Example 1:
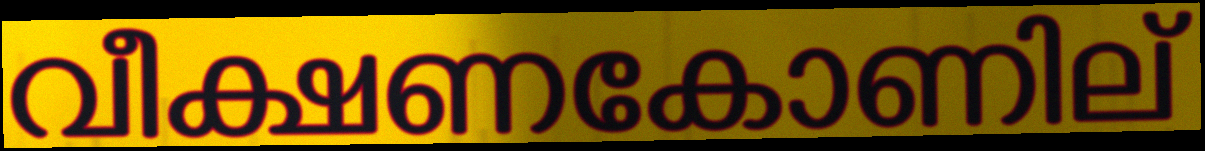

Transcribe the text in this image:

വീക്ഷണകോണില്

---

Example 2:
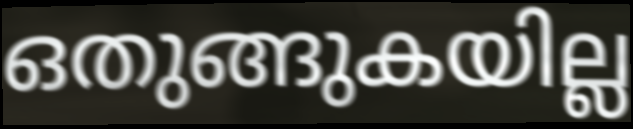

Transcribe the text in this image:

ഒതുങ്ങുകയില്ല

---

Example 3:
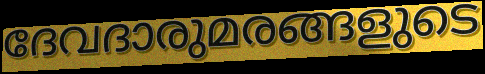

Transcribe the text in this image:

ദേവദാരുമരങ്ങളുടെ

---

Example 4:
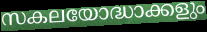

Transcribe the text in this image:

സകലയോദ്ധാക്കളും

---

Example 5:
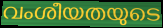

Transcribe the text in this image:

വംശീയതയുടെ